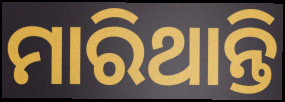
ମାରିଥାନ୍ତି